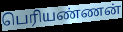
பெரியண்ணன்